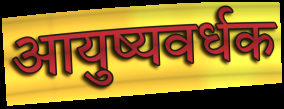
आयुष्यवर्धक